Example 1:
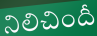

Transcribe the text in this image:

నిలిచిందీ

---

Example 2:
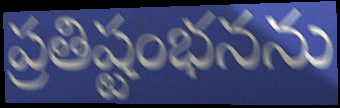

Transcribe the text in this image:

ప్రతిష్టంభనను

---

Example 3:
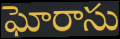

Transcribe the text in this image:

ఘోరాసు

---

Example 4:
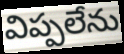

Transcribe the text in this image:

విప్పలేను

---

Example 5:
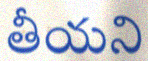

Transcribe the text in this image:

తీయని